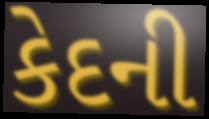
કેદની